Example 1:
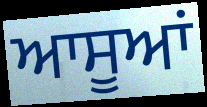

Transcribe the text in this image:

ਆਸੂਆਂ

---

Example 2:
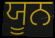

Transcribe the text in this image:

ਯੂਨ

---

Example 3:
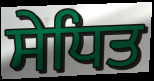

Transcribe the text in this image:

ਸੇਧਿਤ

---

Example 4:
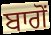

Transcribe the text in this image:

ਬਾਗੋਂ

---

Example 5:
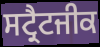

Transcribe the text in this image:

ਸਟ੍ਰੈਟਜੀਕ